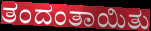
ತಂದಂತಾಯಿತು